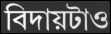
বিদায়টাও